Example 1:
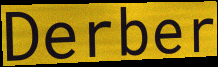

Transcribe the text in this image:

Derber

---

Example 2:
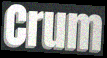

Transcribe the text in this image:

Crum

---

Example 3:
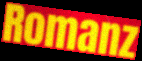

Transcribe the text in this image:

Romanz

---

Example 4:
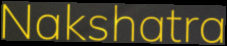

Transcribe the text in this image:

Nakshatra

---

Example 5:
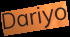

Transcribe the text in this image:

Dariyo